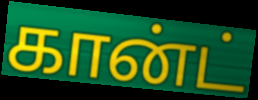
கான்ட்